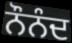
ਨੌਨੰਦ